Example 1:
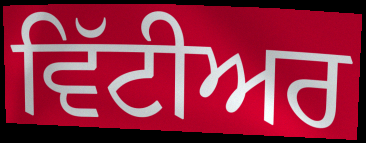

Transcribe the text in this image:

ਵਿੱਟੀਅਰ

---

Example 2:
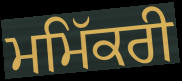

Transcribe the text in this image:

ਮਮਿੱਕਰੀ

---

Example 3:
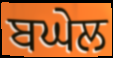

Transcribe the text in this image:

ਬਘੇਲ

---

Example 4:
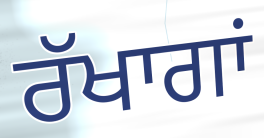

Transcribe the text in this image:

ਰੱਖਾਗਾਂ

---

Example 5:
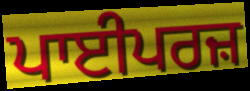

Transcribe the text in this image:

ਪਾਈਪਰਜ਼